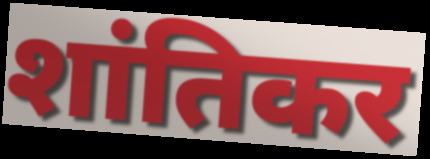
शांतिकर